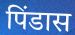
पिंडास